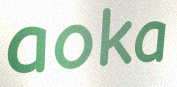
aoka